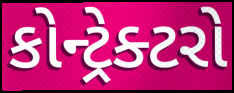
કોન્ટ્રેક્ટરો